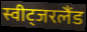
स्वीट्जरलैंड